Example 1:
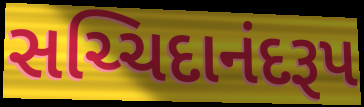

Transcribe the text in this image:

સચ્ચિદાનંદરૂપ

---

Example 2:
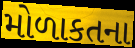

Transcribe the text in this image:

મોળાકતના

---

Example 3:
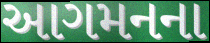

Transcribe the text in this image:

આગમનના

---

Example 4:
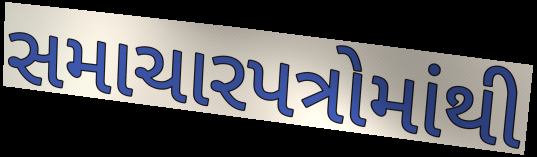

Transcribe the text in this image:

સમાચારપત્રોમાંથી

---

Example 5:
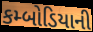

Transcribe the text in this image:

કમ્બોડિયાની